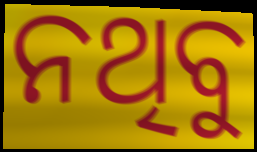
ନଥିବୁ